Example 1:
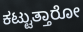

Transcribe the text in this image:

ಕಟ್ಟುತ್ತಾರೋ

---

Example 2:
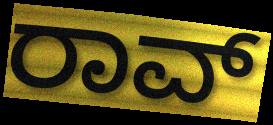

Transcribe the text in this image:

ರಾವ್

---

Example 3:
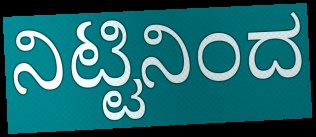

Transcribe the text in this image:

ನಿಟ್ಟಿನಿಂದ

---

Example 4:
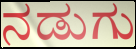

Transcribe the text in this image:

ನಡುಗು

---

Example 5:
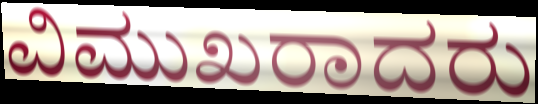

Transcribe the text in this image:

ವಿಮುಖರಾದರು